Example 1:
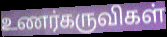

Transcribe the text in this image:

உணர்கருவிகள்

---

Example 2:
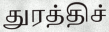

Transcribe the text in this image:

துரத்திச்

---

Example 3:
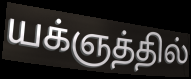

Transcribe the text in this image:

யக்ஞத்தில்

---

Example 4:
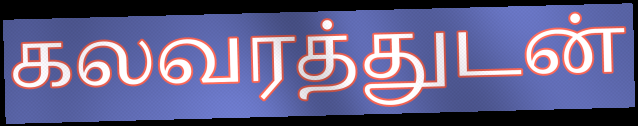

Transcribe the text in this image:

கலவரத்துடன்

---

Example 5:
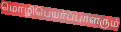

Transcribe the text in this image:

மொழிபெயர்ப்பாளரும்